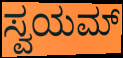
ಸ್ವಯಮ್